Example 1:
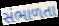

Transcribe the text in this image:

સંભાળતા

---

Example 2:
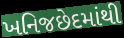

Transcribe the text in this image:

ખનિજછેદમાંથી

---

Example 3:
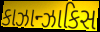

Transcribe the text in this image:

કાઝાન્ઝાકિસ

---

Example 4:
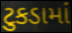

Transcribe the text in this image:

ટુકડામાં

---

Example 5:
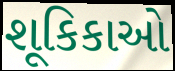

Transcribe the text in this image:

શૂકિકાઓ